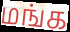
மங்க